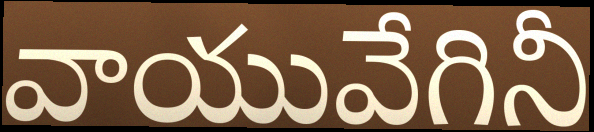
వాయువేగినీ